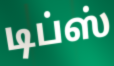
டிப்ஸ்